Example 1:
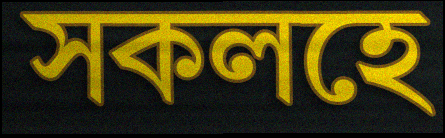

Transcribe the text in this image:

সকলহে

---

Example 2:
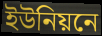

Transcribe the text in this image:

ইউনিয়নে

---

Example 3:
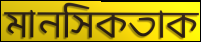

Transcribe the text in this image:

মানসিকতাক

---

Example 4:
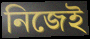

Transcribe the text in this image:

নিজেই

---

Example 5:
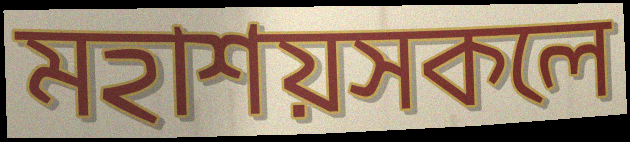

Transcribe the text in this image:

মহাশয়সকলে